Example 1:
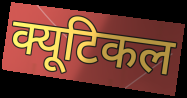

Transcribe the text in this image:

क्यूटिकल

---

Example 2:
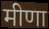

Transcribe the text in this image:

मीणा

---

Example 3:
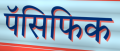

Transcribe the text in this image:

पॅसिफिक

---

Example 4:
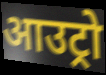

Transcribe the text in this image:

आउट्रो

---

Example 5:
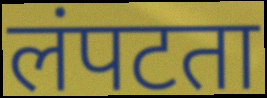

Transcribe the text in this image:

लंपटता